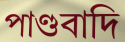
পাণ্ডবাদি